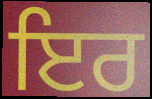
ਇਰ